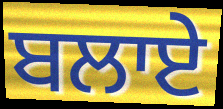
ਬਲਾਏ